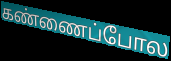
கண்ணைப்போல